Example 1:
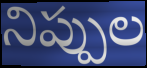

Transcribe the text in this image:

నిప్పుల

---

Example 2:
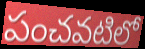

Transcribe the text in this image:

పంచవటిలో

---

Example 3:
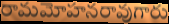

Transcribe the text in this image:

రామమోహనరావుగారు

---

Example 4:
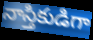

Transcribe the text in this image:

నాస్తికుడిగా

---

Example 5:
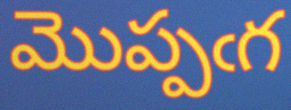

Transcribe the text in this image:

మొప్పఁగ